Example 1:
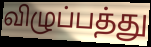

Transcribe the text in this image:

விழுப்பத்து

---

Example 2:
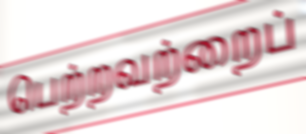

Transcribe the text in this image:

பெற்றவற்றைப்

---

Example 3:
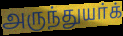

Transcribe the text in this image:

அருந்துயர்க்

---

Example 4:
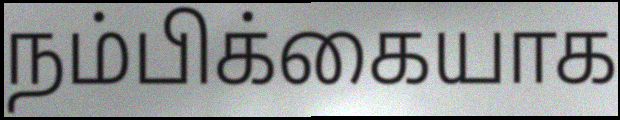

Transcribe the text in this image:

நம்பிக்கையாக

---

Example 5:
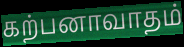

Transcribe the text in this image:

கற்பனாவாதம்